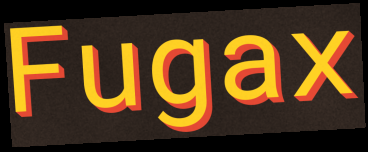
Fugax